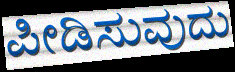
ಪೀಡಿಸುವುದು